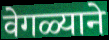
वेगळ्याने